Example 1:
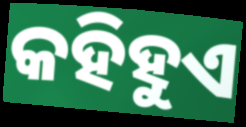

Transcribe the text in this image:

କହିହୁଏ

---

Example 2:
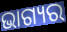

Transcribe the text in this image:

ଭାଗ୍ୟର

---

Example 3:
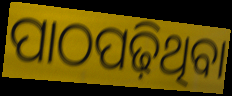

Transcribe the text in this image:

ପାଠପଢ଼ିଥିବା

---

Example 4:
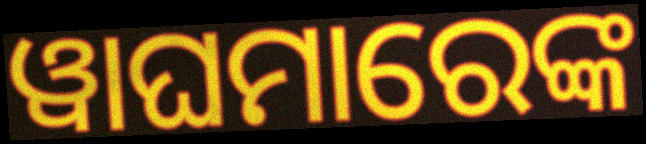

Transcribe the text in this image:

ୱାଘମାରେଙ୍କ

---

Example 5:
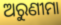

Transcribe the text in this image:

ଅରୁଣୀମା